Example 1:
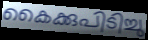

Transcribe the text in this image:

കൈക്കുപിടിച്ചു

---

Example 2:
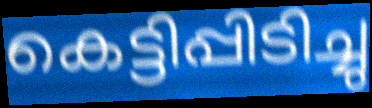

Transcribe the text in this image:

കെട്ടിപ്പിടിച്ചു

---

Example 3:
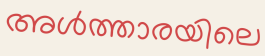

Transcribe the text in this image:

അൾത്താരയിലെ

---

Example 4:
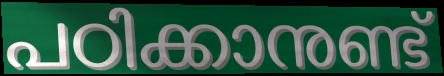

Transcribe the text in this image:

പഠിക്കാനുണ്ട്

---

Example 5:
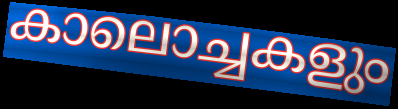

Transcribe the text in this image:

കാലൊച്ചകളും